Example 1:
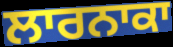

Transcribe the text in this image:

ਲਾਰਨਾਕਾ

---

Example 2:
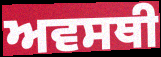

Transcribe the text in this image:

ਅਵਸਥੀ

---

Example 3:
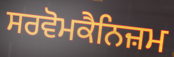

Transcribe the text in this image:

ਸਰਵੋਮਕੈਨਿਜ਼ਮ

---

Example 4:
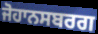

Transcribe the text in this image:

ਜੋਹਾਨਸਬਰਗ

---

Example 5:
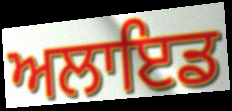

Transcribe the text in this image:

ਅਲਾਇਡ